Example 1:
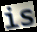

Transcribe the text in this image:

is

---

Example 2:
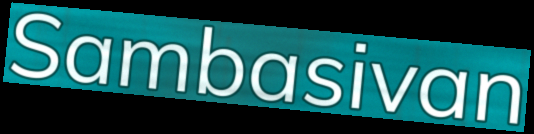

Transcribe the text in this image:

Sambasivan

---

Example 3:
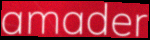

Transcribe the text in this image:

amader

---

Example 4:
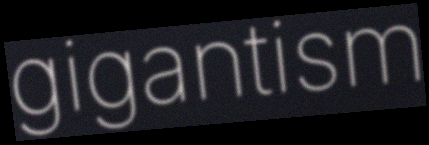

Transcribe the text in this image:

gigantism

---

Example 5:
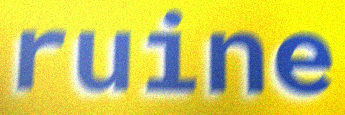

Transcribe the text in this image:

ruine